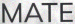
MATE